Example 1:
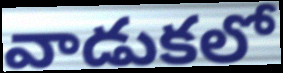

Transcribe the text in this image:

వాడుకలో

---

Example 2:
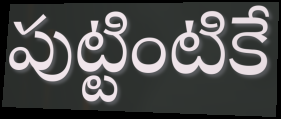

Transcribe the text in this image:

పుట్టింటికే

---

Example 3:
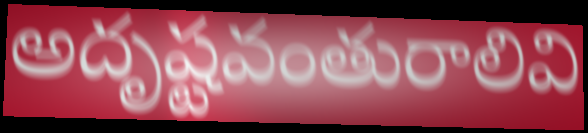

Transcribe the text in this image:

అదృష్టవంతురాలివి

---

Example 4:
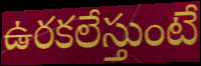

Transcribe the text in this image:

ఉరకలేస్తుంటే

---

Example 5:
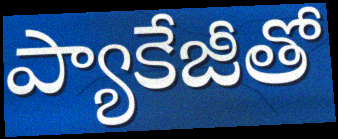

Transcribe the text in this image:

ప్యాకేజీతో